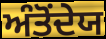
ਅੰਤੋਂਦੇਯ